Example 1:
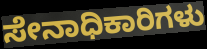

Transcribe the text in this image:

ಸೇನಾಧಿಕಾರಿಗಳು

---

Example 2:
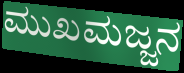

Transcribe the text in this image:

ಮುಖಮಜ್ಜನ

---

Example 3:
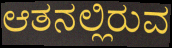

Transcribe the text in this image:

ಆತನಲ್ಲಿರುವ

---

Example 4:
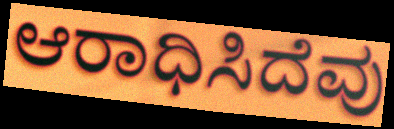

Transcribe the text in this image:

ಆರಾಧಿಸಿದೆವು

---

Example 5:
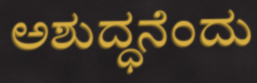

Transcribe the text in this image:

ಅಶುದ್ಧನೆಂದು